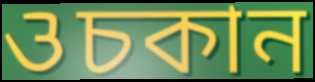
ওচকান